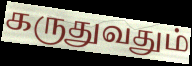
கருதுவதும்